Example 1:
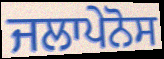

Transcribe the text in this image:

ਜਲਾਪੇਨੋਸ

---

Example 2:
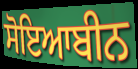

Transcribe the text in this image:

ਸੋਇਆਬੀਨ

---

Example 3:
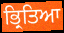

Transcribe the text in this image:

ਭ੍ਰਿਤਿਆ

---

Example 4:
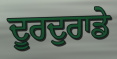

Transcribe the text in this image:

ਦੂਰਦੁਰਾਡੇ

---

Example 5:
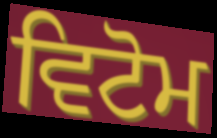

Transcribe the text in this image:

ਵਿਟੋਮ